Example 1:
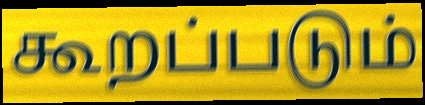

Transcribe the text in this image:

கூறப்படும்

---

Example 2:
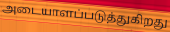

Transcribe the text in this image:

அடையாளப்படுத்துகிறது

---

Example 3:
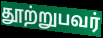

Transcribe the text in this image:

தூற்றுபவர்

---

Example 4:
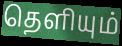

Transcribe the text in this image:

தெளியும்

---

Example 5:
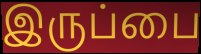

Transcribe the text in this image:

இருப்பை